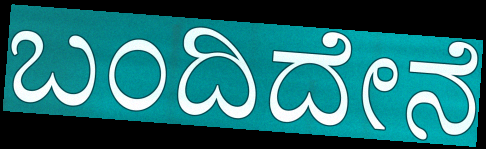
ಬಂದಿದೇನೆ